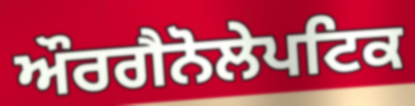
ਔਰਗੈਨੋਲੇਪਟਿਕ